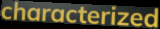
characterized